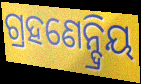
ଗ୍ରହଣେନ୍ଦ୍ରିୟ